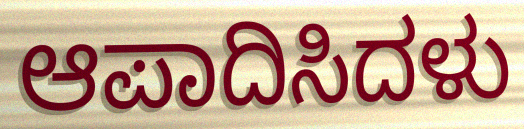
ಆಪಾದಿಸಿದಳು